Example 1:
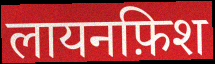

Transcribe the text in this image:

लायनफ़िश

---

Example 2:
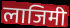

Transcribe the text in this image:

लाजिमी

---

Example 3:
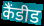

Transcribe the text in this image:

कैंडीड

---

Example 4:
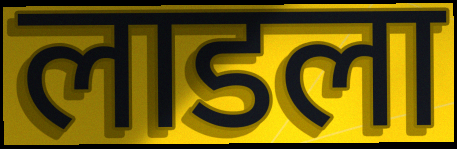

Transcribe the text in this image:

लाडला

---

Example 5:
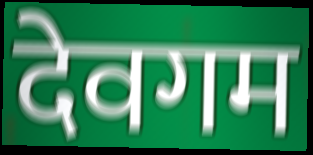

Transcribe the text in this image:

देवगम